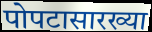
पोपटासारख्या